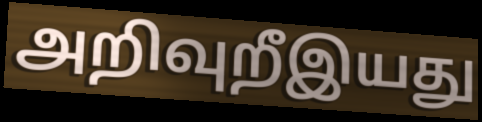
அறிவுறீஇயது